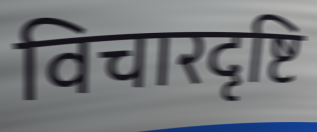
विचारदृष्टि